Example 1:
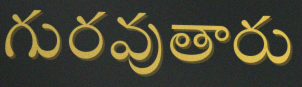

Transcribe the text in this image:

గురవుతారు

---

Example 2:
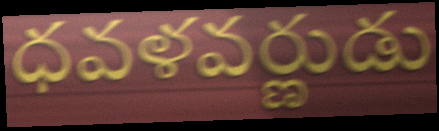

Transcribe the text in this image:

ధవళవర్ణుడు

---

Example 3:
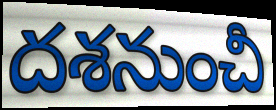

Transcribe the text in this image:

దశనుంచీ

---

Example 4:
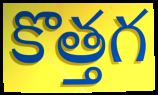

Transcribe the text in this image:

కొత్తగ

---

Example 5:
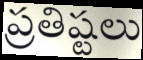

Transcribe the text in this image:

ప్రతిష్టలు